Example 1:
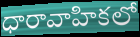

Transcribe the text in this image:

ధారావాహికలో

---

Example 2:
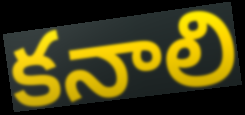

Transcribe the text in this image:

కనాలి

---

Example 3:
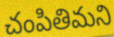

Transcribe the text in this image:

చంపితిమని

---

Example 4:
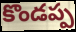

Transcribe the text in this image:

కొండప్ప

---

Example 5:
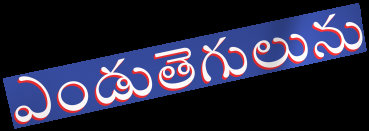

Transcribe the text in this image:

ఎండుతెగులును